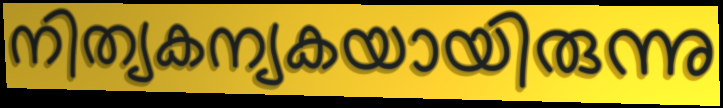
നിത്യകന്യകയായിരുന്നു